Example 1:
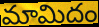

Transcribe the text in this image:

మామిదం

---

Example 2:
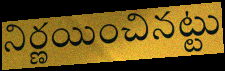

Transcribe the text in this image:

నిర్ణయించినట్టు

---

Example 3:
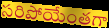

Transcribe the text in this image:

సరిపోయేంతగా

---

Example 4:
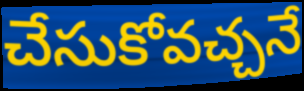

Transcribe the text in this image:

చేసుకోవచ్చనే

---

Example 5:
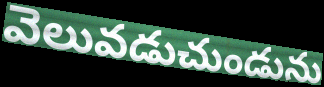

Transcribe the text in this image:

వెలువడుచుండును